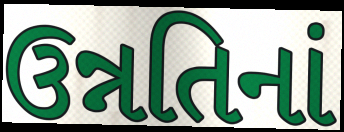
ઉન્નતિનાં